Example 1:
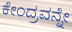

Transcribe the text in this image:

ಕೇಂದ್ರವನ್ನೇ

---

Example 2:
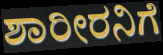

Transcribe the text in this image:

ಶಾರೀರನಿಗೆ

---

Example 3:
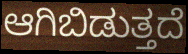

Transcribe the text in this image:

ಆಗಿಬಿಡುತ್ತದೆ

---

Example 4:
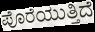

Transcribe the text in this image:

ಪೊರೆಯುತ್ತಿದೆ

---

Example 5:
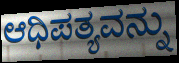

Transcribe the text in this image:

ಆಧಿಪತ್ಯವನ್ನು